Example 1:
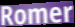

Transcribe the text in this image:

Romer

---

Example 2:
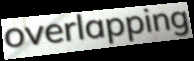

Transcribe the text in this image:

overlapping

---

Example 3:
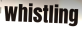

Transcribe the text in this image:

whistling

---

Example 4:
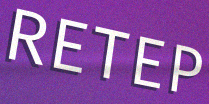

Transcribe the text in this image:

RETEP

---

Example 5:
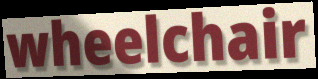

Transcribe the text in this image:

wheelchair